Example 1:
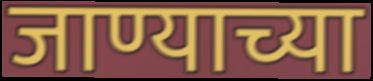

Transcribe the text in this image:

जाण्याच्या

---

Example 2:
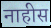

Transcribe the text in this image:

नाहीस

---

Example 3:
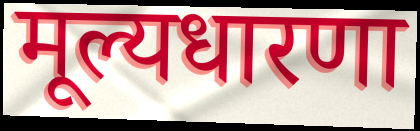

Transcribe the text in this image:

मूल्यधारणा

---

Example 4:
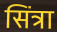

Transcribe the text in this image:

सिंत्रा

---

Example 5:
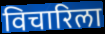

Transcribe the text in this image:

विचारिला